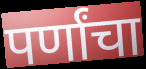
पर्णांचा